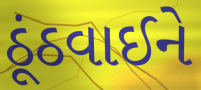
ઠૂંઠવાઈને